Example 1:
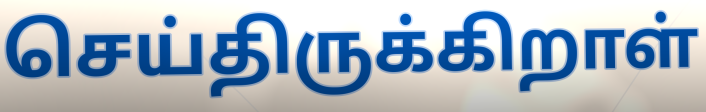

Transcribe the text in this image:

செய்திருக்கிறாள்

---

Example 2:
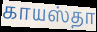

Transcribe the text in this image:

காயஸ்தா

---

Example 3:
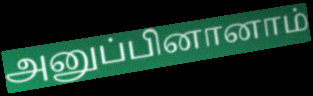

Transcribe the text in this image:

அனுப்பினானாம்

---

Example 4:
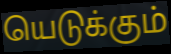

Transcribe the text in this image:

யெடுக்கும்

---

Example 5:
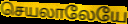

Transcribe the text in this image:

செயலாலேயே